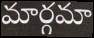
మార్గమా